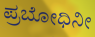
ಪ್ರಬೋಧಿನೀ